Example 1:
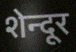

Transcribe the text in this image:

शेन्दूर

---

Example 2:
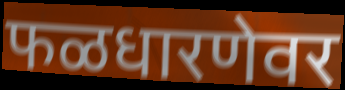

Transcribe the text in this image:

फळधारणेवर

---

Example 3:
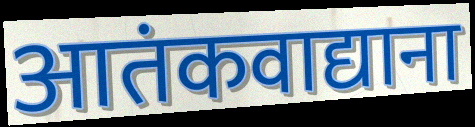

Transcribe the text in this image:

आतंकवाद्याना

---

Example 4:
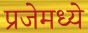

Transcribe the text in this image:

प्रजेमध्ये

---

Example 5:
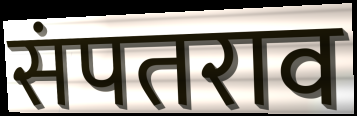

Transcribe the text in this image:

संपतराव